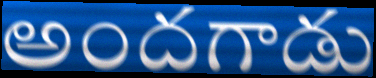
అందగాడు